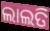
ଲାଲତି